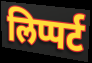
लिप्पर्ट